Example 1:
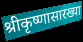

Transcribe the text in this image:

श्रीकृष्णासारख्या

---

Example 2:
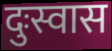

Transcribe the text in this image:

दुःस्वास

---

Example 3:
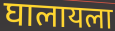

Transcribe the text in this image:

घालायला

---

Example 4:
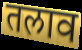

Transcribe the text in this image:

तलाव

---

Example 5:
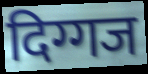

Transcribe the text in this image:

दिग्गज